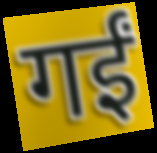
गईं